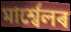
মাৰ্শ্বেলৰ